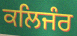
ਕਲਿਜੰਰ